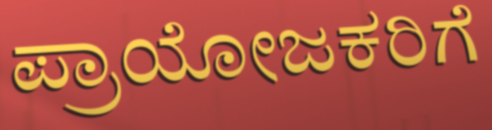
ಪ್ರಾಯೋಜಕರಿಗೆ